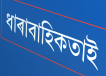
ধাৰাবাহিকতাই